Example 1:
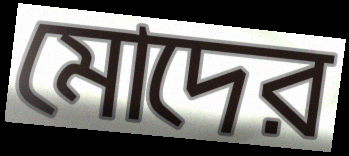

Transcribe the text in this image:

মোদের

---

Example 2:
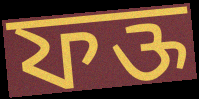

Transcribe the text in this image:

ফক্ত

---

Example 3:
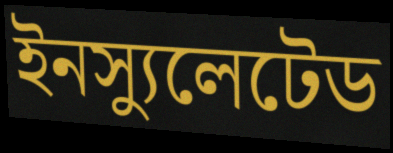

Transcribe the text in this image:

ইনস্যুলেটেড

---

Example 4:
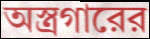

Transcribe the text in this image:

অস্ত্রগারের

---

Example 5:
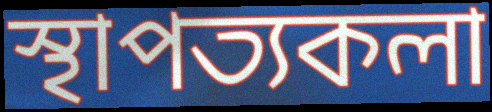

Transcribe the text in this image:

স্থাপত্যকলা